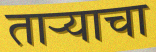
ताऱ्याचा